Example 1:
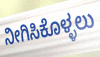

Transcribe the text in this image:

ನೀಗಿಸಿಕೊಳ್ಳಲು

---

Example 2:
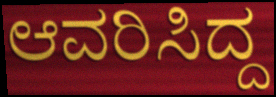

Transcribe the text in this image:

ಆವರಿಸಿದ್ದ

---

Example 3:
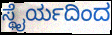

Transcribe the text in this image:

ಸ್ಥೈರ್ಯದಿಂದ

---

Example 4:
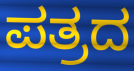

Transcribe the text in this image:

ಪತ್ರದ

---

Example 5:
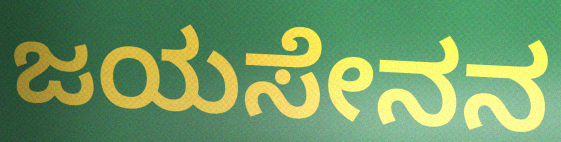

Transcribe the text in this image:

ಜಯಸೇನನ